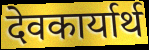
देवकार्यार्थ